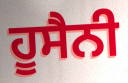
ਹੂਸੈਨੀ